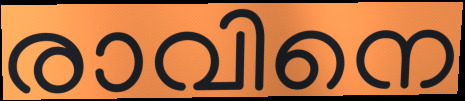
രാവിനെ